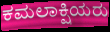
ಕಮಲಾಕ್ಷಿಯರು